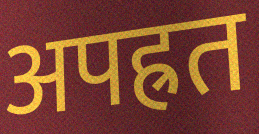
अपह्रत